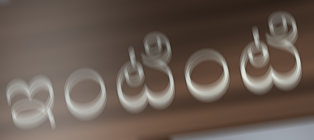
ఇంటింటి